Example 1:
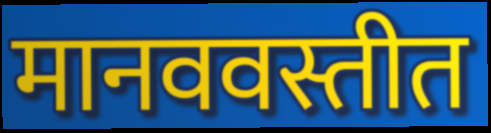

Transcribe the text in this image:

मानववस्तीत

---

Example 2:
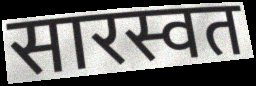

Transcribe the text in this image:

सारस्वत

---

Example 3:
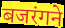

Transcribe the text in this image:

बजरंगने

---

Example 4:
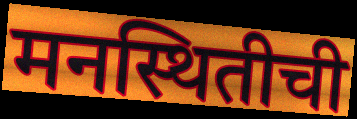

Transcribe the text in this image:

मनस्थितीची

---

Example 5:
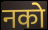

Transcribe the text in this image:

नको